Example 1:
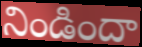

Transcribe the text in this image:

నిండిందా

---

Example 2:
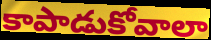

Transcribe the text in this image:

కాపాడుకోవాలా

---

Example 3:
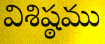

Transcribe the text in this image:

విశిష్ఠము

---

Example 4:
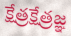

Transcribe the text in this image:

క్షేత్రక్షేత్రజ్ఞ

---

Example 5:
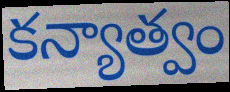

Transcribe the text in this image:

కన్యాత్వం